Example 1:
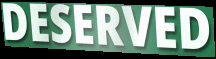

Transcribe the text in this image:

DESERVED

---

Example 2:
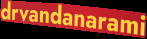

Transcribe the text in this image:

drvandanarami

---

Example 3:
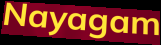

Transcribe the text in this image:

Nayagam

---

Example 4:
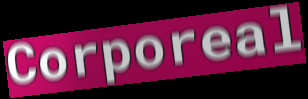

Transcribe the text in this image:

Corporeal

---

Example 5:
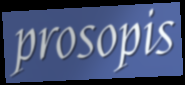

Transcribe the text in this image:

prosopis